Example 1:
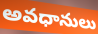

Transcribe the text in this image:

అవధానులు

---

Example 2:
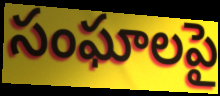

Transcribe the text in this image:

సంఘాలపై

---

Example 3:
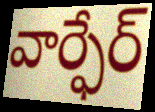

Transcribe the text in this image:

వార్ఫేర్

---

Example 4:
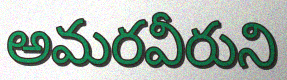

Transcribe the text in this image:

అమరవీరుని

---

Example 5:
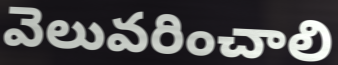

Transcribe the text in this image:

వెలువరించాలి